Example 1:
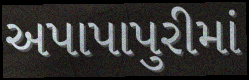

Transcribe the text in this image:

અપાપાપુરીમાં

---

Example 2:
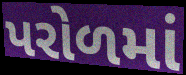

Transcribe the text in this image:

પરોળમાં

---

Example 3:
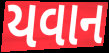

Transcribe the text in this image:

યવાન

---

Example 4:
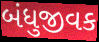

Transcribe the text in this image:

બંધુજીવક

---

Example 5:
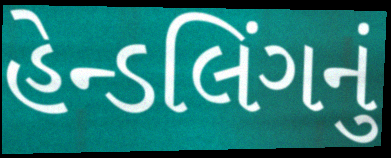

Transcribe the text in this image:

હેન્ડલિંગનું